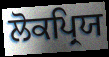
ਲੋਕਪ੍ਰਿਯ